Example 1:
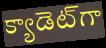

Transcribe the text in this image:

క్యాడెట్‌గా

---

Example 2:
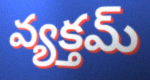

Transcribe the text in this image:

వ్యక్తమ్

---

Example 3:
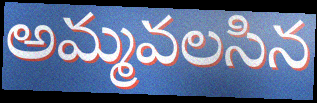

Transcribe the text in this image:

అమ్మవలసిన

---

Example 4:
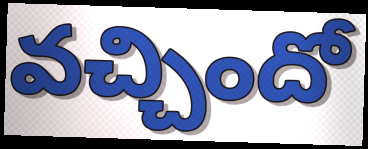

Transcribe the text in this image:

వచ్చిందో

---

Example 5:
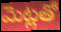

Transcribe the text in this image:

మెట్లతో